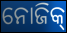
ନୋଜିକ୍